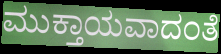
ಮುಕ್ತಾಯವಾದಂತೆ